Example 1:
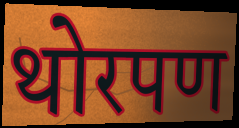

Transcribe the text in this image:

थोरपण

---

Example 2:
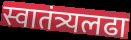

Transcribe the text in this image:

स्वातंत्र्यलढा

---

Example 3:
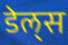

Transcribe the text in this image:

डेल्स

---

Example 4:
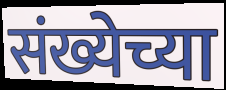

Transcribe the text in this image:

संख्येच्या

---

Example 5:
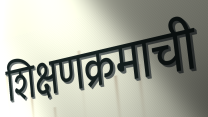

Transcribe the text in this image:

शिक्षणक्रमाची